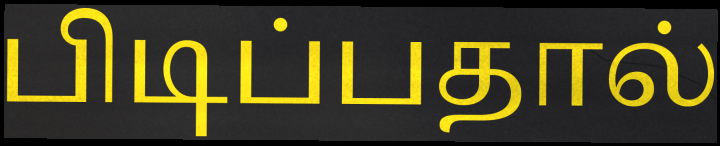
பிடிப்பதால்